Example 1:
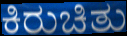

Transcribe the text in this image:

ಕಿರುಚಿತು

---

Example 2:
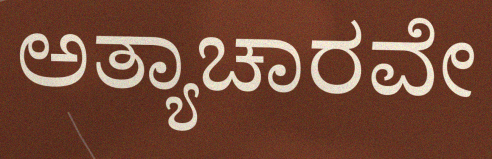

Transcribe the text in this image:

ಅತ್ಯಾಚಾರವೇ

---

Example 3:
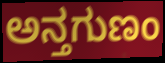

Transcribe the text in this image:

ಅನ್ತಗುಣಂ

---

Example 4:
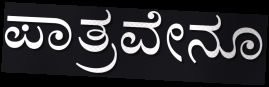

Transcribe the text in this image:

ಪಾತ್ರವೇನೂ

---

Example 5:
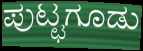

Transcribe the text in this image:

ಪುಟ್ಟಗೂಡು